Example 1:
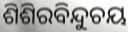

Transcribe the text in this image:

ଶିଶିରବିନ୍ଦୁଚୟ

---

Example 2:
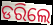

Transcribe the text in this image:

ଡରିଲେ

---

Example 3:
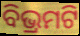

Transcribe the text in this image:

ବିଭ୍ରମଟି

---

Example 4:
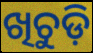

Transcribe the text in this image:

ଖିଚୁଡ଼ି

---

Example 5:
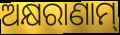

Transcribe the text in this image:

ଅକ୍ଷରାଣାମ୍